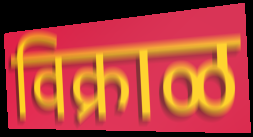
विक्राळ